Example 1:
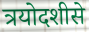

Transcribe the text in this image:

त्रयोदशीसे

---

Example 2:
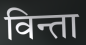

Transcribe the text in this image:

विन्ता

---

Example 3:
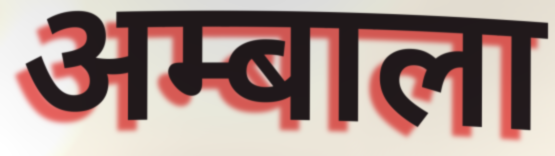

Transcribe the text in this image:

अम्बाला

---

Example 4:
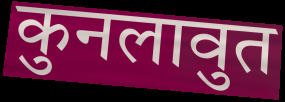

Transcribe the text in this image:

कुनलावुत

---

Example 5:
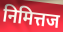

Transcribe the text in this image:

निमित्तज